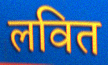
लवित